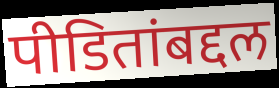
पीडितांबद्दल